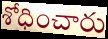
శోధించారు